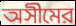
অসীমের